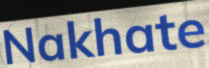
Nakhate